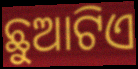
ଛୁଆଟିଏ